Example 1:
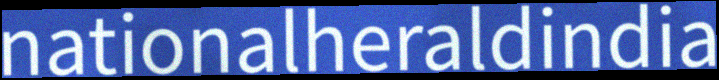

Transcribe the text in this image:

nationalheraldindia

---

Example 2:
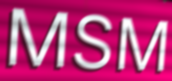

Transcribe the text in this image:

MSM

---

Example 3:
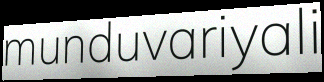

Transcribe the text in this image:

munduvariyali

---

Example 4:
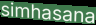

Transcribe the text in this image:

simhasana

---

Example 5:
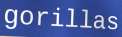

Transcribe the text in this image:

gorillas